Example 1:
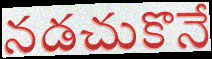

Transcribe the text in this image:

నడచుకొనే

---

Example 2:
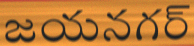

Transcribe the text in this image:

జయనగర్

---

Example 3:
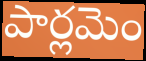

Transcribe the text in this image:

పార్లమెం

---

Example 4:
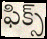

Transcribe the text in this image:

ఫిక్స్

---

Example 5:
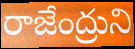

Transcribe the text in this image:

రాజేంద్రుని